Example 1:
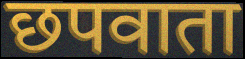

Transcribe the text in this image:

छपवाता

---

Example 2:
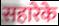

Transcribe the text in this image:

सहारेके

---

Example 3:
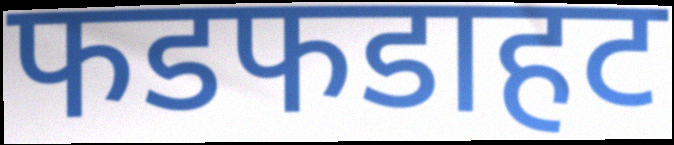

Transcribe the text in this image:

फडफडाहट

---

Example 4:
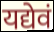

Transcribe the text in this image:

यद्येवं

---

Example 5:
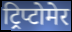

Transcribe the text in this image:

ट्रिप्टोमेर